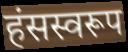
हंसस्वरूप